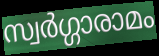
സ്വർഗ്ഗാരാമം